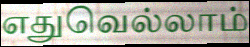
எதுவெல்லாம்